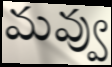
మవ్వు